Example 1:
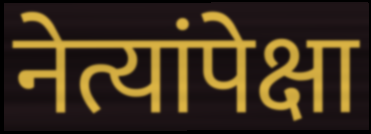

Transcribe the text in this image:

नेत्यांपेक्षा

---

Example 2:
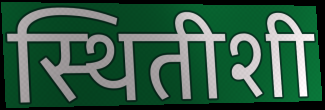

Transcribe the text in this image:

स्थितीशी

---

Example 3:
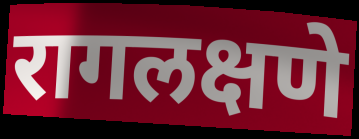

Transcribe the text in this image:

रागलक्षणे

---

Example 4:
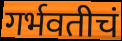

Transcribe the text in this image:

गर्भवतीचं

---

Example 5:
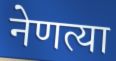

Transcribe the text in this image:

नेणत्या